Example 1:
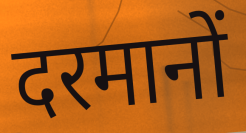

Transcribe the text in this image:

दरमानों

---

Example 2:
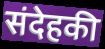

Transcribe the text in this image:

संदेहकी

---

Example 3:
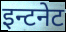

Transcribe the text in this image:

इन्टनेट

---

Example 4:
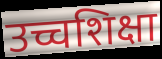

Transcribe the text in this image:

उच्चशिक्षा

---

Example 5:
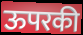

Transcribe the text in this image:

ऊपरकी